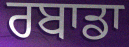
ਰਬਾਡਾ